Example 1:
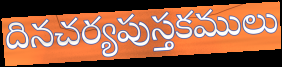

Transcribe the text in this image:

దినచర్యపుస్తకములు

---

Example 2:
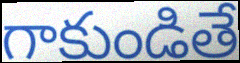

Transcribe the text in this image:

గాకుండితే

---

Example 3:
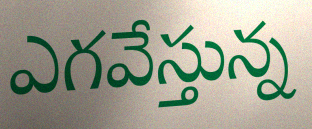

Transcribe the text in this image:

ఎగవేస్తున్న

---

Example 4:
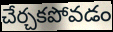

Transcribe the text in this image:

చేర్చకపోవడం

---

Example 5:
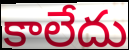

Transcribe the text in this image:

కాలేదు